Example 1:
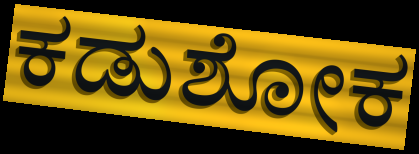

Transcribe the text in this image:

ಕಡುಶೋಕ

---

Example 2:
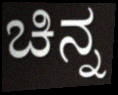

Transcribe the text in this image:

ಚಿನ್ನ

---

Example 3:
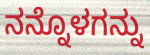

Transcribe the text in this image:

ನನ್ನೊಳಗನ್ನು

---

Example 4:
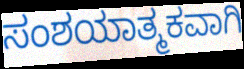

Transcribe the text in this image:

ಸಂಶಯಾತ್ಮಕವಾಗಿ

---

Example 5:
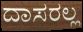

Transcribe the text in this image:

ದಾಸರಲ್ಲ